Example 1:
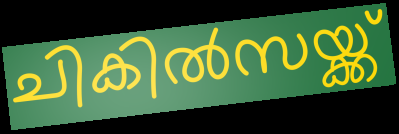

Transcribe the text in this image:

ചികിൽസയ്ക്ക്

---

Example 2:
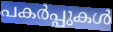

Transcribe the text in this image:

പകർപ്പുകൾ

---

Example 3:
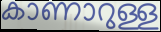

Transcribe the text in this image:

കാണാറുള്ള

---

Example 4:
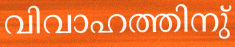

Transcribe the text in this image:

വിവാഹത്തിനു്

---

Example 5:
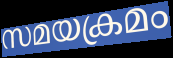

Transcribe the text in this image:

സമയക്രമം